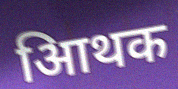
आिथक